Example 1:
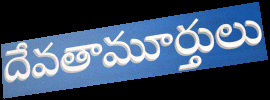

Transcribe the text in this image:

దేవతామూర్తులు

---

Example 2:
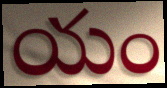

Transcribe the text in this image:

యం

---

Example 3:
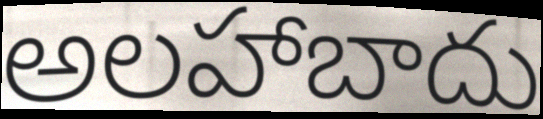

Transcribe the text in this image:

అలహాబాదు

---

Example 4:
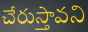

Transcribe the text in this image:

చేరుస్తావని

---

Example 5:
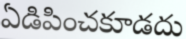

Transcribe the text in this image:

ఏడిపించకూడదు